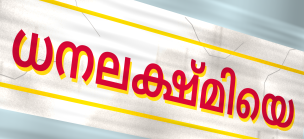
ധനലക്ഷ്മിയെ